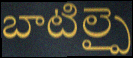
బాటిల్పై